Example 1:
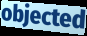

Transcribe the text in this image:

objected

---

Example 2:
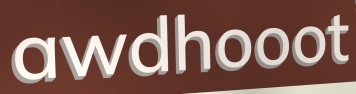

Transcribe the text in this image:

awdhooot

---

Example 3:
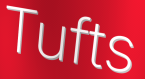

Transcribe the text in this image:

Tufts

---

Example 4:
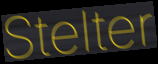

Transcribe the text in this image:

Stelter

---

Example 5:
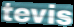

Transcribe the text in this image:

tevis